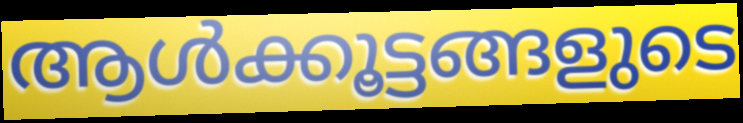
ആൾക്കൂട്ടങ്ങളുടെ